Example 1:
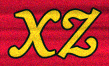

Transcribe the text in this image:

xz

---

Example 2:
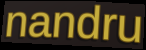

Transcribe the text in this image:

nandru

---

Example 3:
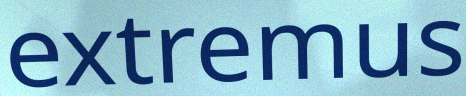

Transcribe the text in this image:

extremus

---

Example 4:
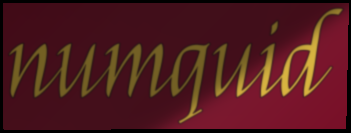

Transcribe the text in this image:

numquid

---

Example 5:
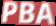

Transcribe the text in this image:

PBA